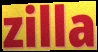
zilla